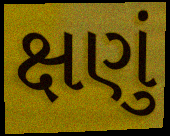
ક્ષણું